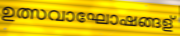
ഉത്സവാഘോഷങ്ങള്